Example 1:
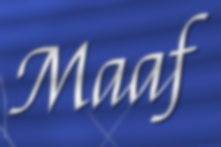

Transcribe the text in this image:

Maaf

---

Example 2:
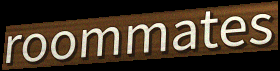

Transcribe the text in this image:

roommates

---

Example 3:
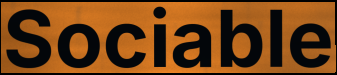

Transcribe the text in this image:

Sociable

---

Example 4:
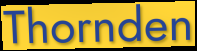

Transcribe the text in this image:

Thornden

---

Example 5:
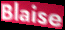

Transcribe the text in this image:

Blaise